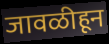
जावळीहून